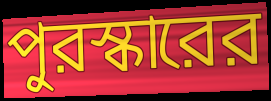
পুরস্কারের